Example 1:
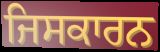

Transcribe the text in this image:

ਜਿਸਕਾਰਨ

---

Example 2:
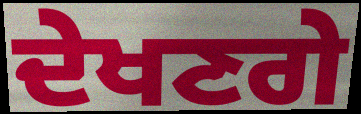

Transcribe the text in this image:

ਦੇਖਣਗੇ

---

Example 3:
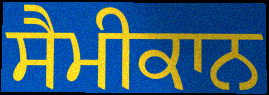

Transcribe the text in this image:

ਸੈਮੀਕਾਨ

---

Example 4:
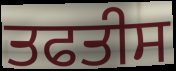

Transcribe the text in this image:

ਤਫਤੀਸ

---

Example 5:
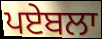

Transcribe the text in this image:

ਪਏਬਲਾ